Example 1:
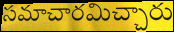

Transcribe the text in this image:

సమాచారమిచ్చారు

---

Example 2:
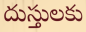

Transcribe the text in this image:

దుస్తులకు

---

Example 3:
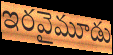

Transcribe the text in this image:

ఇరవైమూడు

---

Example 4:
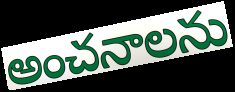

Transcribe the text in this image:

అంచనాలను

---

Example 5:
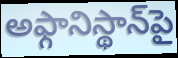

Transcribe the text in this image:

అఫ్గానిస్థాన్‌పై